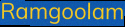
Ramgoolam